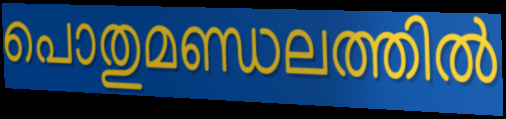
പൊതുമണ്ഡലത്തിൽ